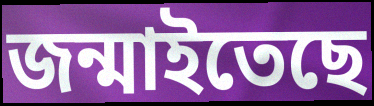
জন্মাইতেছে